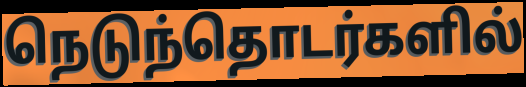
நெடுந்தொடர்களில்